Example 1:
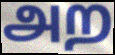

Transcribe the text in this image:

அற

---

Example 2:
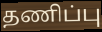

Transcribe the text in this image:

தணிப்பு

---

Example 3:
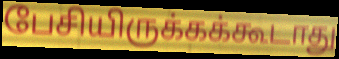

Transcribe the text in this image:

பேசியிருக்கக்கூடாது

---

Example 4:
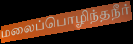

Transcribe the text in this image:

மலைப்பொழிந்தநீர்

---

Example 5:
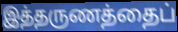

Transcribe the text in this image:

இத்தருணத்தைப்